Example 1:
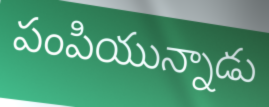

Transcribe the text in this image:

పంపియున్నాడు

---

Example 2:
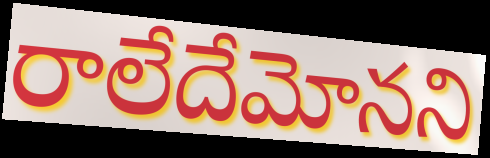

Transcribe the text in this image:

రాలేదేమోనని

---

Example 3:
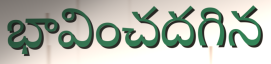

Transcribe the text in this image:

భావించదగిన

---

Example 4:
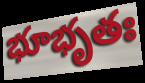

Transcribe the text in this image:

భూభృతః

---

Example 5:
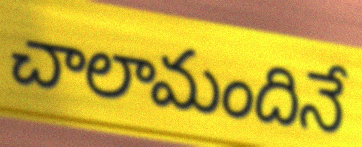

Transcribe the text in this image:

చాలామందినే